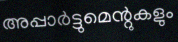
അപ്പാർട്ടുമെന്റുകളും